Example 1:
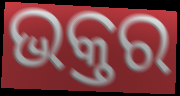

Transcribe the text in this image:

ଭକ୍ତର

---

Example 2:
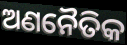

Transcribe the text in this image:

ଅଣନୈତିକ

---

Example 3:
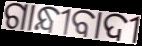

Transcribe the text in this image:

ଗାନ୍ଧୀବାଦୀ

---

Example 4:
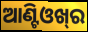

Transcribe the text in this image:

ଆଣ୍ଟିଓଖ୍‍ର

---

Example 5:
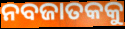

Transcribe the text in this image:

ନବଜାତକକୁ